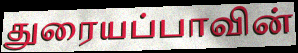
துரையப்பாவின்